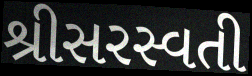
શ્રીસરસ્વતી